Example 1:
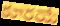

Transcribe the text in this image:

కూరయే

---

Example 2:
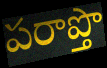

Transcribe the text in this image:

పరాప్తొ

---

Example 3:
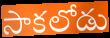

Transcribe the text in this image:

సాకలోడు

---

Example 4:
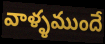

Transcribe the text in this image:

వాళ్ళముందే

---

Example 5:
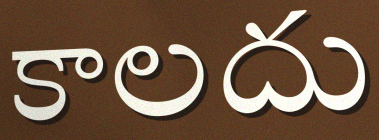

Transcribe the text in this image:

కాలదు